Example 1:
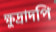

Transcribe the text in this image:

ক্ষুদ্রাদপি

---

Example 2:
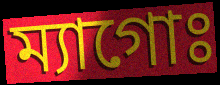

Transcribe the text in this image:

ম্যাগোঃ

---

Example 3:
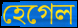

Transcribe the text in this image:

হেগেল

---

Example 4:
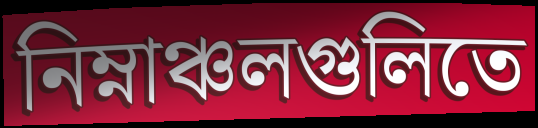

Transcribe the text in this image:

নিম্নাঞ্চলগুলিতে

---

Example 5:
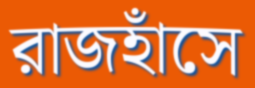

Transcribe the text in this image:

রাজহাঁসে